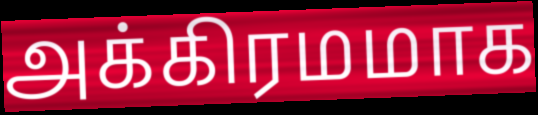
அக்கிரமமாக